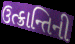
ઉત્ક્રાન્તિની